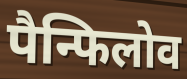
पैन्फिलोव